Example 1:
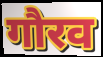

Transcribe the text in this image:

गौरव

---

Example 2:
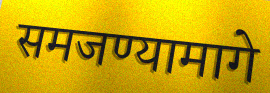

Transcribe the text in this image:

समजण्यामागे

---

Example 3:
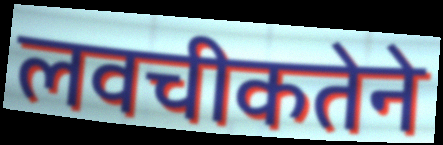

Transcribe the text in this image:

लवचीकतेने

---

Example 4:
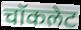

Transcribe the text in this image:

चॉकलेट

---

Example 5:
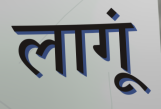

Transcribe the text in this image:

लागूं